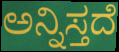
ಅನ್ನಿಸ್ತದೆ